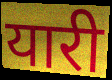
यारी